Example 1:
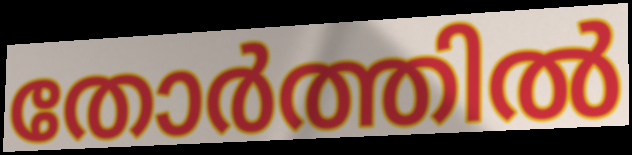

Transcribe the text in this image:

തോർത്തിൽ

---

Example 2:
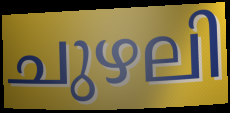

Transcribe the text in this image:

ചുഴലി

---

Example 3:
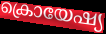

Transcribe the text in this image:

ക്രൊയേഷ്യ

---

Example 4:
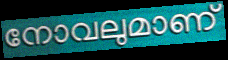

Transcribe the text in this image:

നോവലുമാണ്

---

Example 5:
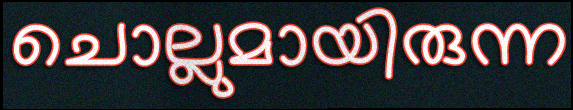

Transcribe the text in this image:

ചൊല്ലുമായിരുന്ന